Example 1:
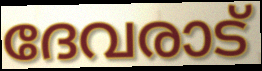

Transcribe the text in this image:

ദേവരാട്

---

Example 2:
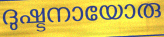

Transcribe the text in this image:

ദുഷ്ടനായോരു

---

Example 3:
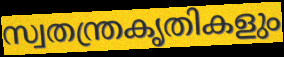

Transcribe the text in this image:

സ്വതന്ത്രകൃതികളും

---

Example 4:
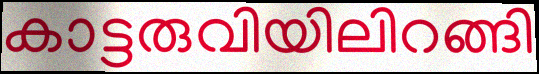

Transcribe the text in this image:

കാട്ടരുവിയിലിറങ്ങി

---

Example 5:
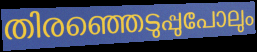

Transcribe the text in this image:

തിരഞ്ഞെടുപ്പുപോലും